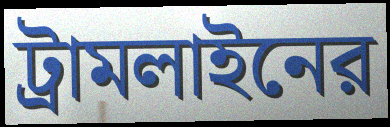
ট্রামলাইনের